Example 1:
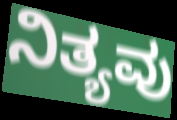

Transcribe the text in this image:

ನಿತ್ಯವು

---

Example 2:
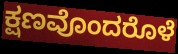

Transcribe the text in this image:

ಕ್ಷಣವೊಂದರೊಳೆ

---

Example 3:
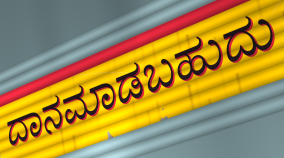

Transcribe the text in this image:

ದಾನಮಾಡಬಹುದು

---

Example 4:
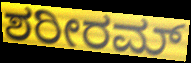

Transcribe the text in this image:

ಶರೀರಮ್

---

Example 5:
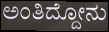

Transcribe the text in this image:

ಅಂತಿದ್ದೋನು